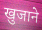
खुजाने